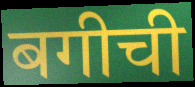
बगीची